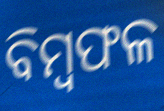
ବିମ୍ୱଫଳ